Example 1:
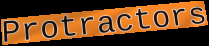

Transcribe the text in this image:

Protractors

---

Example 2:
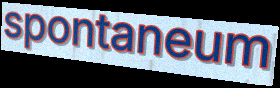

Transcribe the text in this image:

spontaneum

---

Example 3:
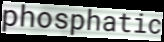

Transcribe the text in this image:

phosphatic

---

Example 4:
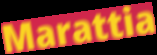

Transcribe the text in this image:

Marattia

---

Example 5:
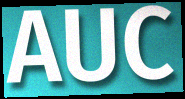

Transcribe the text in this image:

AUC